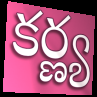
కర్ణ్య